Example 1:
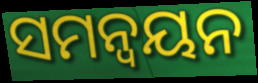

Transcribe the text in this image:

ସମନ୍ୱୟନ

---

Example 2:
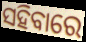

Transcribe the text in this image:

ସହିବାରେ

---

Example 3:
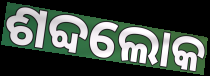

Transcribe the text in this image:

ଶବ୍ଦଲୋକ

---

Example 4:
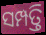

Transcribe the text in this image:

ସମ୍ପତ୍ତି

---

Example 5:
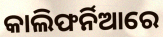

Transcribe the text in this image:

କାଲିଫର୍ନିଆରେ